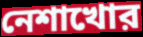
নেশাখোর